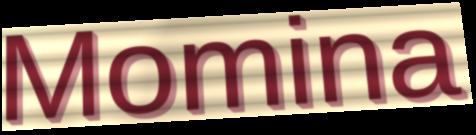
Momina